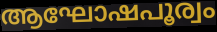
ആഘോഷപൂര്വം